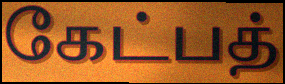
கேட்பத்